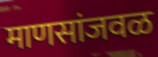
माणसांजवळ